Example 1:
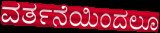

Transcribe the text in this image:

ವರ್ತನೆಯಿಂದಲೂ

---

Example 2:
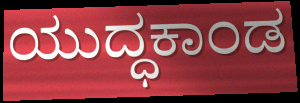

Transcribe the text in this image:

ಯುದ್ಧಕಾಂಡ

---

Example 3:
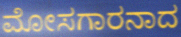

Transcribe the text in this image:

ಮೋಸಗಾರನಾದ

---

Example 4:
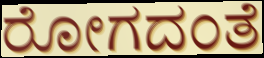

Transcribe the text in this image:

ರೋಗದಂತೆ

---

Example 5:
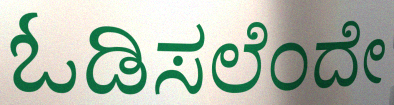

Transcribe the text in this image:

ಓಡಿಸಲೆಂದೇ